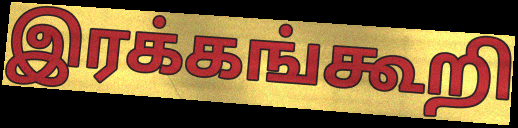
இரக்கங்கூறி